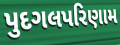
પુદગલપરિણામ